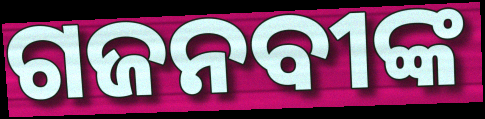
ଗଜନବୀଙ୍କ